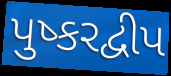
પુષ્કરદ્વીપ